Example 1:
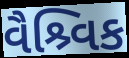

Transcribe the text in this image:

વૈશ્ર્વિક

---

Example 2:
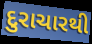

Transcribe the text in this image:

દુરાચારથી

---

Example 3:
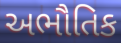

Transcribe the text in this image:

અભૌતિક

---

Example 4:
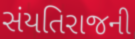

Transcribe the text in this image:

સંયતિરાજની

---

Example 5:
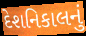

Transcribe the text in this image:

દેશનિકાલનું